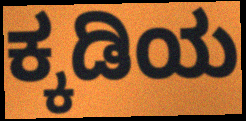
ಕ್ಕಡಿಯ